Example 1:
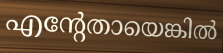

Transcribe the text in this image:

എന്റേതായെങ്കിൽ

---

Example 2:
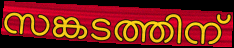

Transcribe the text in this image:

സങ്കടത്തിന്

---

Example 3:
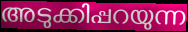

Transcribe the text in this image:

അടുക്കിപ്പറയുന്ന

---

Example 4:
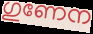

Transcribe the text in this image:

ഗുണേന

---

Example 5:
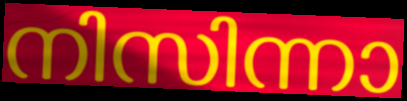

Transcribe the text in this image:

നിസിന്നാ